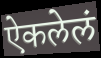
ऐकलेलं